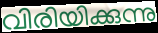
വിരിയിക്കുന്നു